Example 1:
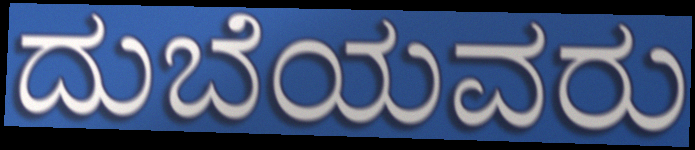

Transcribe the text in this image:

ದುಬೆಯವರು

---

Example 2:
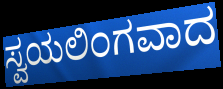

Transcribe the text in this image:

ಸ್ವಯಲಿಂಗವಾದ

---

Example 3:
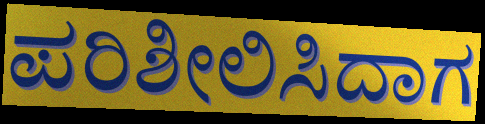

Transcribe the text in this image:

ಪರಿಶೀಲಿಸಿದಾಗ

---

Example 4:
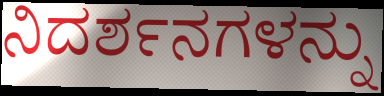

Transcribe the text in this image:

ನಿದರ್ಶನಗಳನ್ನು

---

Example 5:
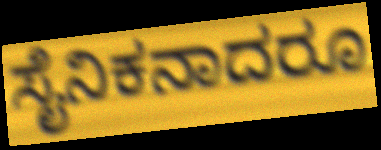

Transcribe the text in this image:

ಸೈನಿಕನಾದರೂ